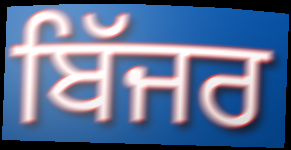
ਬਿੱਜਰ